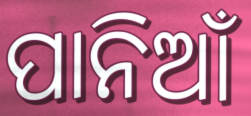
ପାନିଆଁ